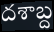
దశాబ్ద